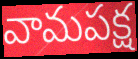
వామపక్ష